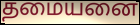
தமையனை